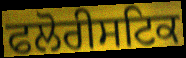
ਫਲੋਰੀਸਟਿਕ